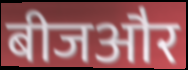
बीजऔर